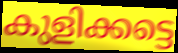
കുളിക്കട്ടെ